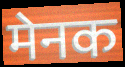
मेनक